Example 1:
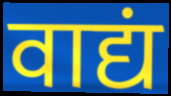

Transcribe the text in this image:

वाद्यं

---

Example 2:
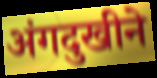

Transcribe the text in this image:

अंगदुखीने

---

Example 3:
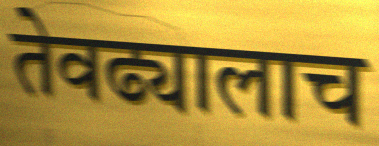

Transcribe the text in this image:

तेवढ्यालाच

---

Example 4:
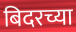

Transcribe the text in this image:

बिदरच्या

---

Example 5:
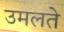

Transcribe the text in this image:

उमलते